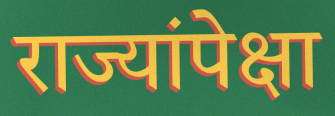
राज्यांपेक्षा